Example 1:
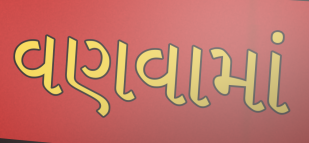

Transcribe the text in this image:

વણવામાં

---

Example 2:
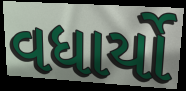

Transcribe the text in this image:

વધાર્યો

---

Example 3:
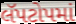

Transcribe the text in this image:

લૅપટોપમાં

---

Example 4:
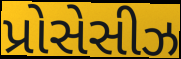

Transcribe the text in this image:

પ્રોસેસીઝ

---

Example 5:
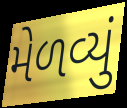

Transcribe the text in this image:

મેળવ્યું